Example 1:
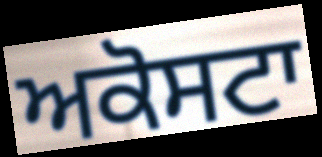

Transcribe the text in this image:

ਅਕੋਸਟਾ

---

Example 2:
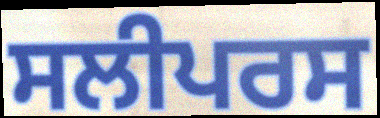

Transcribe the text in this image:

ਸਲੀਪਰਸ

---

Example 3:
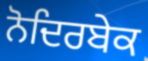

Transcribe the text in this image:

ਨੋਦਿਰਬੇਕ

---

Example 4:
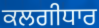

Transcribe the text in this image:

ਕਲਗੀਧਾਰ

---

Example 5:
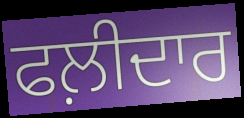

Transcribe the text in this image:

ਫਲ਼ੀਦਾਰ